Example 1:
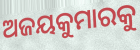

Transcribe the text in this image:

ଅଜୟକୁମାରକୁ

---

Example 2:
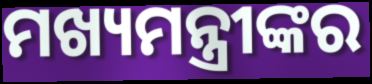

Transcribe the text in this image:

ମଖ୍ୟମନ୍ତ୍ରୀଙ୍କର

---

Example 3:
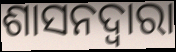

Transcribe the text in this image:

ଶାସନଦ୍ୱାରା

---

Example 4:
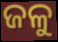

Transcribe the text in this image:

ଜଳୁ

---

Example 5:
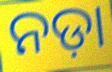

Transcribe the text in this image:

ନଡ଼ା